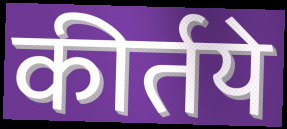
कीर्तये